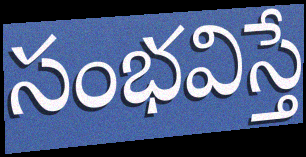
సంభవిస్తే